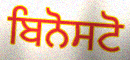
ਬਿਨੋਸਟੋ